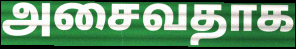
அசைவதாக